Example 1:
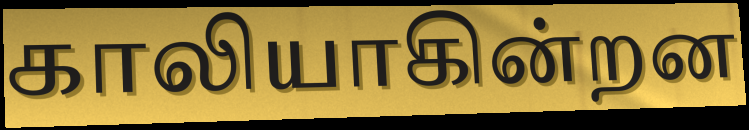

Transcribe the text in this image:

காலியாகின்றன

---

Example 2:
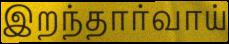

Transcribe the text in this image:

இறந்தார்வாய்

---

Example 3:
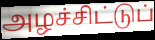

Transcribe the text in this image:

அழச்சிட்டுப்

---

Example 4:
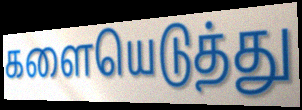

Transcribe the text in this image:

களையெடுத்து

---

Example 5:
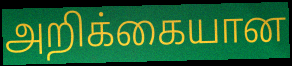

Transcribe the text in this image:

அறிக்கையான